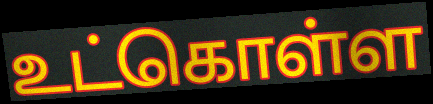
உட்கொள்ள